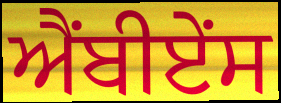
ਐਂਬੀਏਂਸ